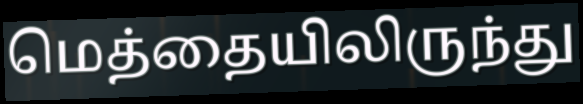
மெத்தையிலிருந்து